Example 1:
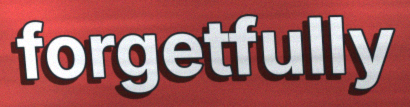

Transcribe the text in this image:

forgetfully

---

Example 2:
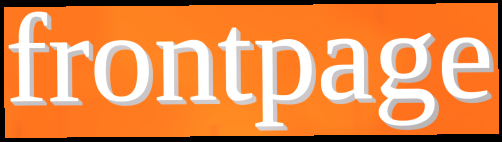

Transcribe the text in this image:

frontpage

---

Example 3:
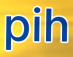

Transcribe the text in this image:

pih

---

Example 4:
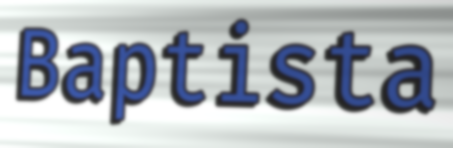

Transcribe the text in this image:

Baptista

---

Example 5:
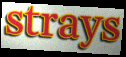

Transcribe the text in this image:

strays